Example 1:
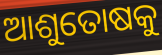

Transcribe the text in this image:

ଆଶୁତୋଷକୁ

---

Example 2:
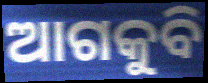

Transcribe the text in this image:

ଆଗକୁବି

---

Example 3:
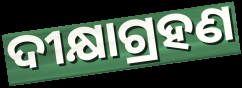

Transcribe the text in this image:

ଦୀକ୍ଷାଗ୍ରହଣ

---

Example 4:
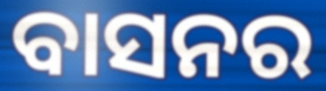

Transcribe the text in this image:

ବାସନର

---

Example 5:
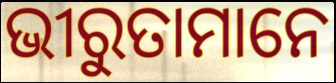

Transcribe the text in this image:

ଭୀରୁତାମାନେ